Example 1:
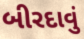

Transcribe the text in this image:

બીરદાવું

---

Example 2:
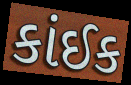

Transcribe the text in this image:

કાંઈક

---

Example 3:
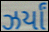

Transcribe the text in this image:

ઝર્યાં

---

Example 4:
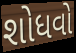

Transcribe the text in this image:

શોધવો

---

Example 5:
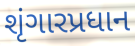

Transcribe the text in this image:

શૃંગારપ્રધાન